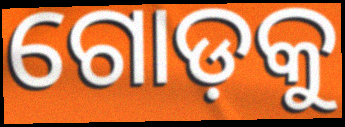
ଗୋଡ଼କୁ